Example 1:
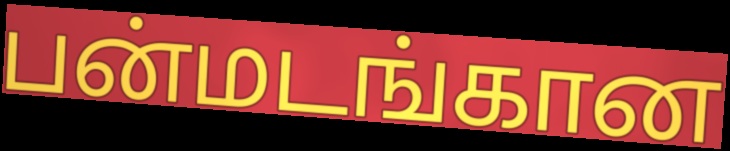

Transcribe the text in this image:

பன்மடங்கான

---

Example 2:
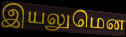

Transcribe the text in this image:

இயலுமென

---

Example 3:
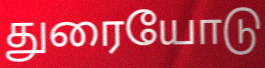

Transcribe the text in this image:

துரையோடு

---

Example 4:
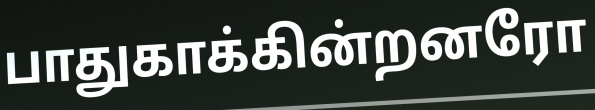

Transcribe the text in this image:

பாதுகாக்கின்றனரோ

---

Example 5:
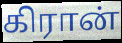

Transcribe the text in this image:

கிரான்